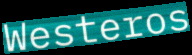
Westeros